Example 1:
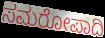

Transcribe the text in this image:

ಸಮರೋಪಾದಿ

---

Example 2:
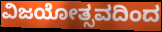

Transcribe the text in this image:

ವಿಜಯೋತ್ಸವದಿಂದ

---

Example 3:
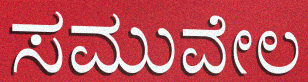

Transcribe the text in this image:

ಸಮುವೇಲ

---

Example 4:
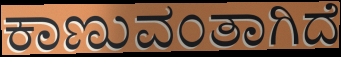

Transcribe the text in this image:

ಕಾಣುವಂತಾಗಿದೆ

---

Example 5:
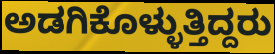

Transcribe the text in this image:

ಅಡಗಿಕೊಳ್ಳುತ್ತಿದ್ದರು